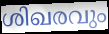
ശിഖരവും